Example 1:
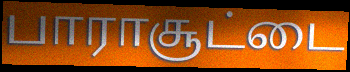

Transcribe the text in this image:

பாராசூட்டை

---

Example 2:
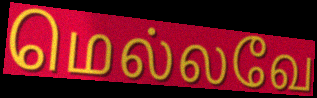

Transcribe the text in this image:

மெல்லவே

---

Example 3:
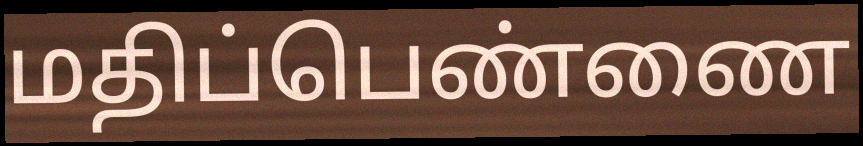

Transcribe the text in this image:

மதிப்பெண்ணை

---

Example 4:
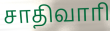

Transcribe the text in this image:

சாதிவாரி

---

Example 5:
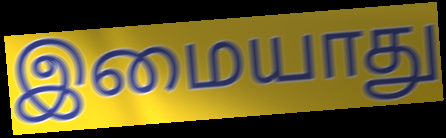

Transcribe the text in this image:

இமையாது